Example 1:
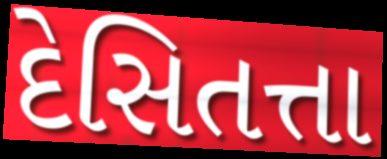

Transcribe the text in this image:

દેસિતત્તા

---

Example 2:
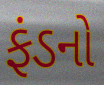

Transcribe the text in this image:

ફંડનો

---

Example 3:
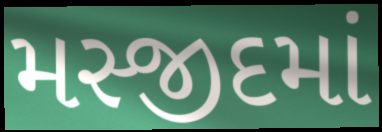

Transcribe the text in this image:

મસ્જીદમાં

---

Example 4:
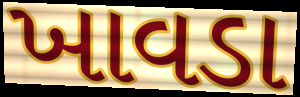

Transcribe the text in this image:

ખાવડા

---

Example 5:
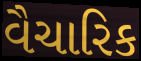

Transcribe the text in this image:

વૈચારિક